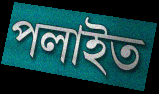
পলাইত